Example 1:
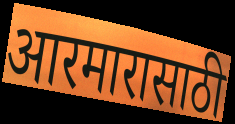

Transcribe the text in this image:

आरमारासाठी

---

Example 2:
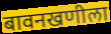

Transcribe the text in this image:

बावनखणीला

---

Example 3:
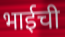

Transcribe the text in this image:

भाईची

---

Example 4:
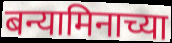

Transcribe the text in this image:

बन्यामिनाच्या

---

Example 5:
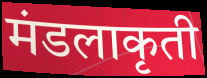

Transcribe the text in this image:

मंडलाकृती